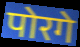
पोरगे